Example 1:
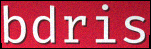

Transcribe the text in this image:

bdris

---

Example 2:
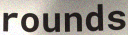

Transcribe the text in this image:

rounds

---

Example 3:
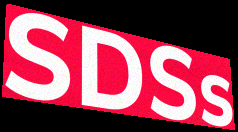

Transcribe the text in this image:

SDSs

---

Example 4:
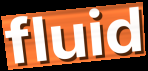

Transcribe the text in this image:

fluid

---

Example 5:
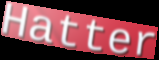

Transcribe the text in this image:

Hatter